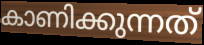
കാണിക്കുന്നത്